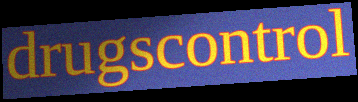
drugscontrol